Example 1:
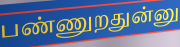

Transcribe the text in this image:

பண்ணுறதுன்னு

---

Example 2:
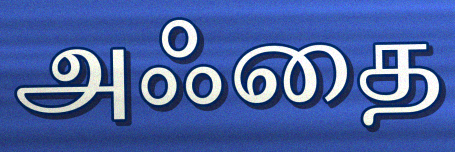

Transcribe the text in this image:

அஃதை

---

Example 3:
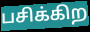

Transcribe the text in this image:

பசிக்கிற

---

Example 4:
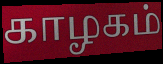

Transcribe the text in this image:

காழகம்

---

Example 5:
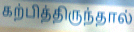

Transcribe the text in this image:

கற்பித்திருந்தால்